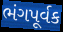
ભંગપૂર્વક